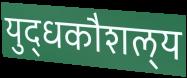
युद्धकौशल्य